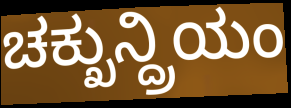
ಚಕ್ಖುನ್ದ್ರಿಯಂ